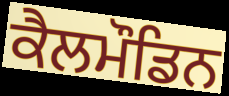
ਕੈਲਮੌਡਿਨ